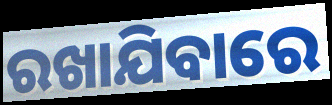
ରଖାଯିବାରେ